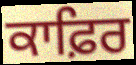
ਕਾਫ਼ਿਰ